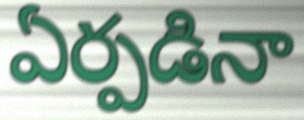
ఏర్పడినా